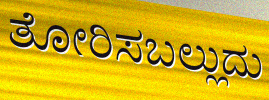
ತೋರಿಸಬಲ್ಲುದು